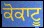
ਕੋਕਾਟੂ